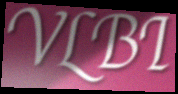
VLBI